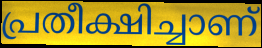
പ്രതീക്ഷിച്ചാണ്